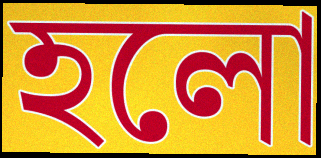
হলো